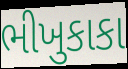
ભીખુકાકા